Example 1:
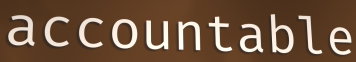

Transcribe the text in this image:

accountable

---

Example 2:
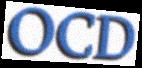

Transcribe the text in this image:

OCD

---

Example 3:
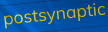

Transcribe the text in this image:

postsynaptic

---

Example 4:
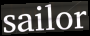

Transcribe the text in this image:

sailor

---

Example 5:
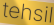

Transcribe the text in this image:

tehsil